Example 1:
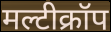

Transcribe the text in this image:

मल्टीक्रॉप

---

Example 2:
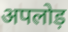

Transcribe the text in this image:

अपलोड़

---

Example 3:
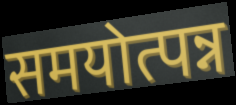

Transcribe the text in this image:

समयोत्पन्न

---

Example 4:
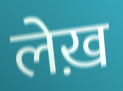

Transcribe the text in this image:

लेख़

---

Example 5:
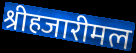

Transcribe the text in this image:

श्रीहजारीमल